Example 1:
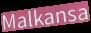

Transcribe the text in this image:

Malkansa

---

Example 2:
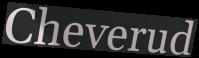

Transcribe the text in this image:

Cheverud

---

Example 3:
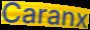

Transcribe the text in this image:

Caranx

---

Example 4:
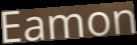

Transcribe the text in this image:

Eamon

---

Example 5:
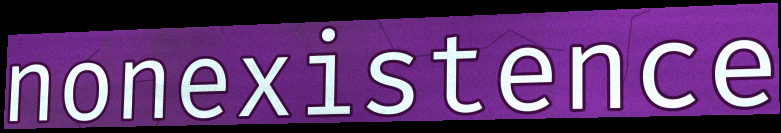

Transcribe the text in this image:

nonexistence